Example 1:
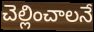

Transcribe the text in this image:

చెల్లించాలనే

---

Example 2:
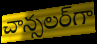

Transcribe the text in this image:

చాన్సలర్‌గా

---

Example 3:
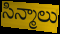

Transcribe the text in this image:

సిన్మాలు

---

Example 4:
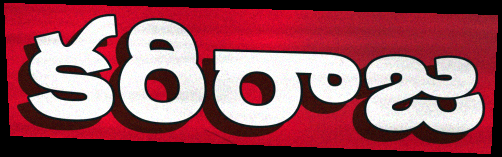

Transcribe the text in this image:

కరిరాజ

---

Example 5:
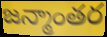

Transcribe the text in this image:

జన్మాంతర